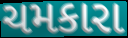
ચમકારા